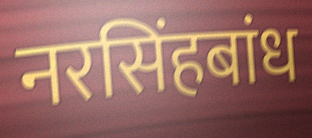
नरसिंहबांध